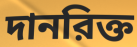
দানরিক্ত